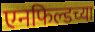
एनफिल्डच्या